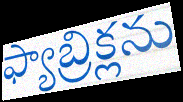
ఫ్యాబ్రిక్లను